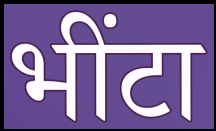
भींटा